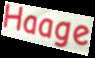
Haage